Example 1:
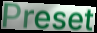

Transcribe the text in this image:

Preset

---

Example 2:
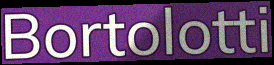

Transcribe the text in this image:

Bortolotti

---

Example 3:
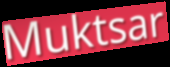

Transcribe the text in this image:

Muktsar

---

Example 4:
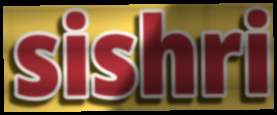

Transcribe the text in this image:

sishri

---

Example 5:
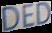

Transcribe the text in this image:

DED